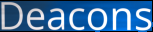
Deacons